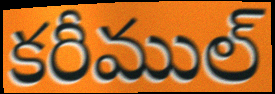
కరీముల్